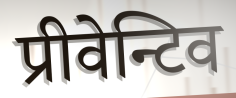
प्रीवेन्टिव